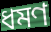
ধমণ